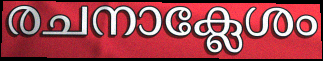
രചനാക്ലേശം